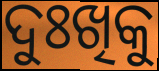
ଦୁଃଖିକୁ